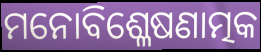
ମନୋବିଶ୍ଳେଷଣାତ୍ମକ